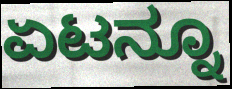
ಏಟನ್ನೂ